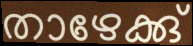
താഴേക്കു്